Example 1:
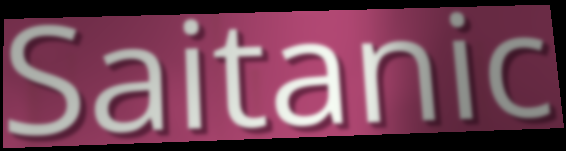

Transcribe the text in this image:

Saitanic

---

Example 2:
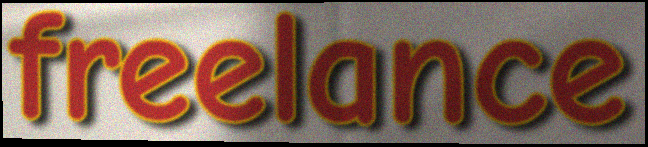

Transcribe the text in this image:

freelance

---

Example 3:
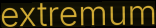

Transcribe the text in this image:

extremum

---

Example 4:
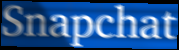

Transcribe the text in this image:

Snapchat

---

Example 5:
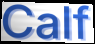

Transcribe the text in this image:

Calf